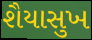
શૈયાસુખ